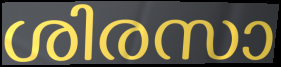
ശിരസാ